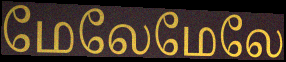
மேலேமேலே